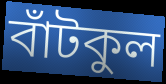
বাঁটকুল